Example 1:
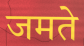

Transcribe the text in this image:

जमते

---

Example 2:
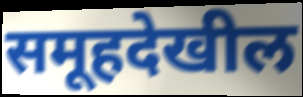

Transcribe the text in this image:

समूहदेखील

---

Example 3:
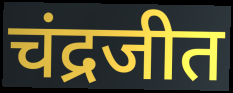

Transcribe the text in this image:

चंद्रजीत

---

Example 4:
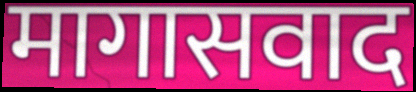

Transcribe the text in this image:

मागासवाद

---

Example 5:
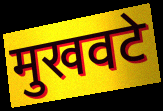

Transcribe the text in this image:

मुखवटे